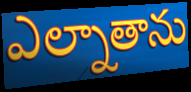
ఎల్నాతాను